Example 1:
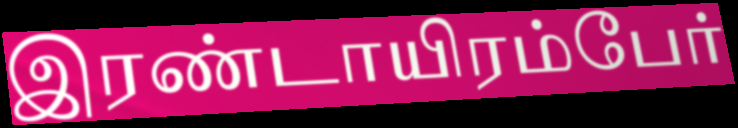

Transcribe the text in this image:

இரண்டாயிரம்பேர்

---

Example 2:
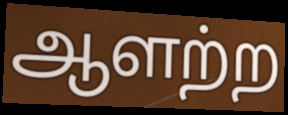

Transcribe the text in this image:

ஆளற்ற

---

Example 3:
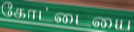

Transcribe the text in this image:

கோட்டையை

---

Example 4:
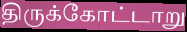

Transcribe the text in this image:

திருக்கோட்டாறு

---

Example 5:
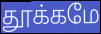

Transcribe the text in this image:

தூக்கமே